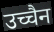
उच्चैन